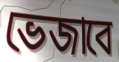
ভেজাবে